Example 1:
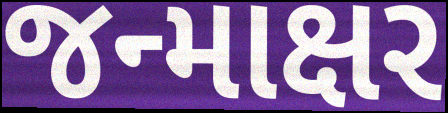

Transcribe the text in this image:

જન્માક્ષર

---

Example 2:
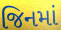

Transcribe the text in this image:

જિનમાં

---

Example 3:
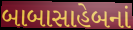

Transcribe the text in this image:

બાબાસાહેબનાં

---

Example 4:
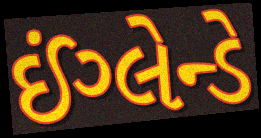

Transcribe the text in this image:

ઈંગ્લેન્ડે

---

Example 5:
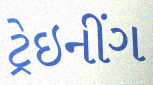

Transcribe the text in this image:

ટ્રેઇનીંગ